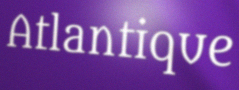
Atlantique